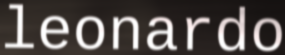
leonardo